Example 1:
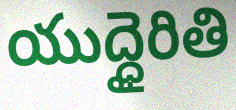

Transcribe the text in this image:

యుద్ధైరితి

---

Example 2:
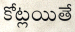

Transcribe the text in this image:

కోట్లయితే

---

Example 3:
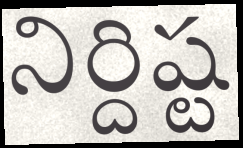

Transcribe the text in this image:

నిర్దిష్ట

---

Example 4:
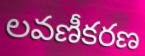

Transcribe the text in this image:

లవణీకరణ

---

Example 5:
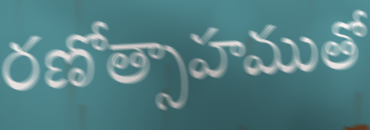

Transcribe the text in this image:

రణోత్సాహముతో